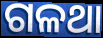
ଗଳଥା